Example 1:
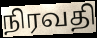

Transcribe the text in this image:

நிரவதி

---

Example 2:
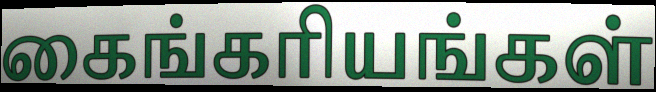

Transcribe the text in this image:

கைங்கரியங்கள்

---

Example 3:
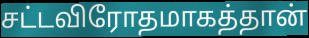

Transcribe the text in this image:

சட்டவிரோதமாகத்தான்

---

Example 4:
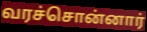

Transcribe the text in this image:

வரச்சொன்னார்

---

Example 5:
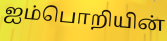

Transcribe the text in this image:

ஐம்பொறியின்